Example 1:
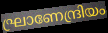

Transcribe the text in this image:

ഘ്രാണേന്ദ്രിയം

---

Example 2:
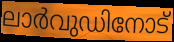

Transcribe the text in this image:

ലാർവുഡിനോട്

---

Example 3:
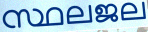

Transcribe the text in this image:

സ്ഥലജല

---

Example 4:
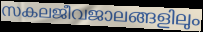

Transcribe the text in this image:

സകലജീവജാലങ്ങളിലും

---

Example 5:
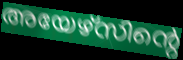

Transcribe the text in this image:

അയേഴ്സിന്റെ